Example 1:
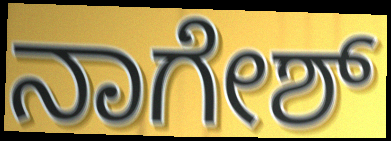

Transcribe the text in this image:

ನಾಗೇಶ್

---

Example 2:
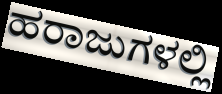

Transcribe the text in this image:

ಹರಾಜುಗಳಲ್ಲಿ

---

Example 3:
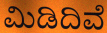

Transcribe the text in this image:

ಮಿಡಿದಿವೆ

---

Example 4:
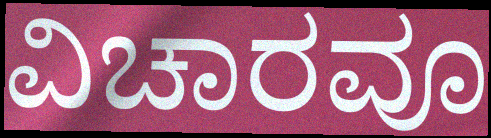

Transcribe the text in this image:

ವಿಚಾರವೂ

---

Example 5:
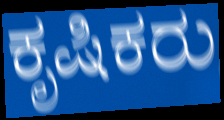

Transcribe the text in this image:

ಕೃಷಿಕರು